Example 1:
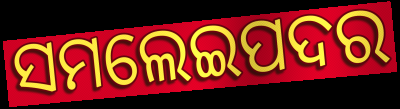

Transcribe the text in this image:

ସମଲେଇପଦର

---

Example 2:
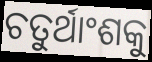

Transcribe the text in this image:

ଚତୁର୍ଥାଂଶକୁ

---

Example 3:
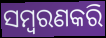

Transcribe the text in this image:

ସମ୍ବରଣକରି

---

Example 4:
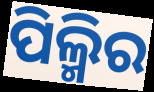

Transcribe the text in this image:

ପିଲ୍ମିର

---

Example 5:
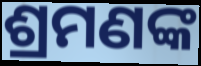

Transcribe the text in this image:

ଶ୍ରମଣଙ୍କ